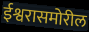
ईश्वरासमोरील